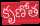
కృణోత